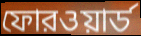
ফোরওয়ার্ড